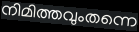
നിമിത്തവുംതന്നെ